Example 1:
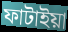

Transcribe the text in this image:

ফাটাইয়া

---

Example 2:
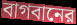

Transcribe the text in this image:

বাগবানের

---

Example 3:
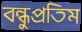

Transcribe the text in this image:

বন্ধুপ্রতিম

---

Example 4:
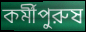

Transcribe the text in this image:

কর্মীপুরুষ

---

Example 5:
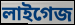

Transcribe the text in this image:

লাইগেজ